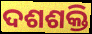
ଦଶଶକ୍ତି